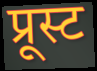
प्रूस्ट